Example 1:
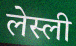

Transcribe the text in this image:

लेस्ली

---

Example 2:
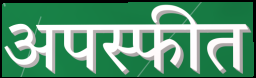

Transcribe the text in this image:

अपस्फीत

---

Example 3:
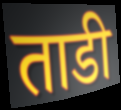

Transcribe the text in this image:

ताडी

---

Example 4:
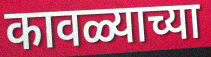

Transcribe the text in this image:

कावळ्याच्या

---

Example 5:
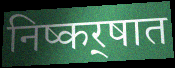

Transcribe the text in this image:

निष्कर्षात